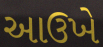
આઉખે